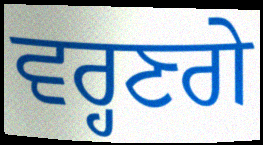
ਵਰ੍ਹਣਗੇ